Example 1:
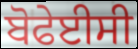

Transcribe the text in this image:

ਬੋਫੇਈਸੀ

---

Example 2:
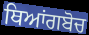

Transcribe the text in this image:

ਥਿਆਂਗਬੋਚ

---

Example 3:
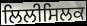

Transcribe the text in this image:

ਲਿਲੀਸਿਲਕ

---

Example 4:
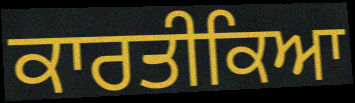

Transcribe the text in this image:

ਕਾਰਤੀਕਿਆ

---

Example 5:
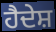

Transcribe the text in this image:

ਹੈਦੇਸ਼